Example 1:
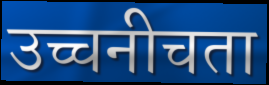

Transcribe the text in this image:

उच्चनीचता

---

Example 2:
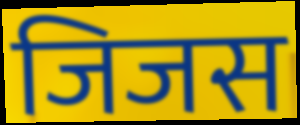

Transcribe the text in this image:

जिजस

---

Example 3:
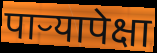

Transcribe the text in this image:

पाऱ्यापेक्षा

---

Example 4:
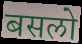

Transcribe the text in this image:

बसलो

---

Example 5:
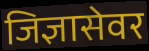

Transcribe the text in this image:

जिज्ञासेवर